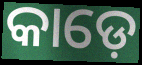
କାଡ଼େ